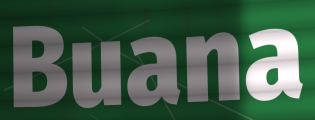
Buana